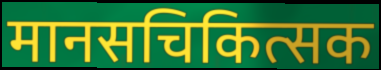
मानसचिकित्सक